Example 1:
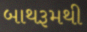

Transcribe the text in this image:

બાથરૂમથી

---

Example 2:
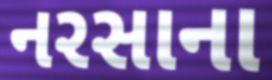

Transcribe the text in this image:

નરસાના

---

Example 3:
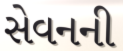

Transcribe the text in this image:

સેવનની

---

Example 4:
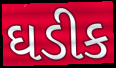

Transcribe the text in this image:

ઘડીક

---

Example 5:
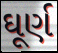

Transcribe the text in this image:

ઘૂર્ણ